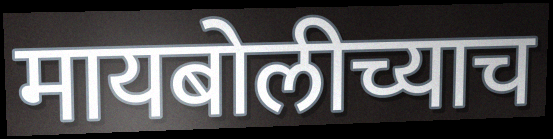
मायबोलीच्याच